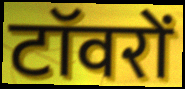
टॉवरों